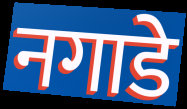
नगाडे